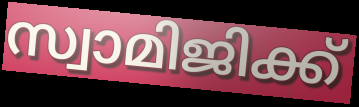
സ്വാമിജിക്ക്